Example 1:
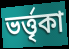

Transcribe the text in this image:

ভর্ত্তৃকা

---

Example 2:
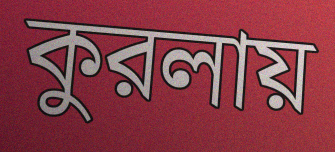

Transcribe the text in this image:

কুরলায়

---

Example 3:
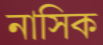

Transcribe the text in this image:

নাসিক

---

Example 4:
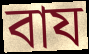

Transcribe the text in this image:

বায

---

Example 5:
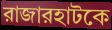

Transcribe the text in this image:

রাজারহাটকে